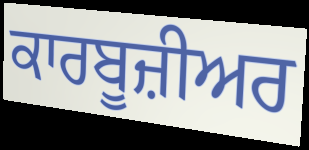
ਕਾਰਬੂਜ਼ੀਅਰ